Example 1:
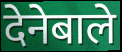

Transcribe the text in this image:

देनेबाले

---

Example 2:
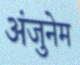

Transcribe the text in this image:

अंजुनेम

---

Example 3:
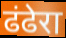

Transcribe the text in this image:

ढंढेरा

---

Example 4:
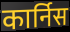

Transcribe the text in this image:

कार्निस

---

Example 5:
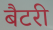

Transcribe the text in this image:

बैटरी